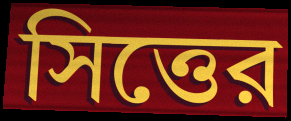
সিত্তের